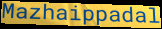
Mazhaippadal